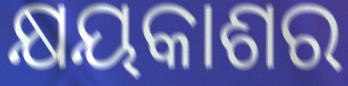
କ୍ଷୟକାଶର